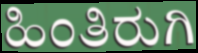
ಹಿಂತಿರುಗಿ